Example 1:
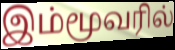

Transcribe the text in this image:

இம்மூவரில்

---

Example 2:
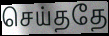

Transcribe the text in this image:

செய்ததே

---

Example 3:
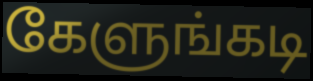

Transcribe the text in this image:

கேளுங்கடி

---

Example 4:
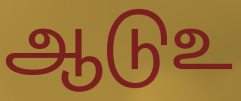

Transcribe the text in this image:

ஆடுஉ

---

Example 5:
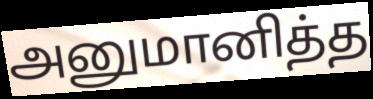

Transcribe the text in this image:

அனுமானித்த